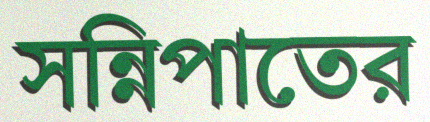
সন্নিপাতের